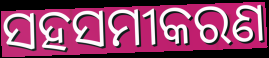
ସହସମୀକରଣ